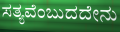
ಸತ್ಯವೆಂಬುದದೇನು